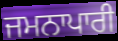
ਜਮਨਾਪਾਰੀ